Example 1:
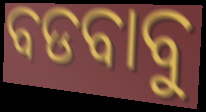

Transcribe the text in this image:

ବଡବାବୁ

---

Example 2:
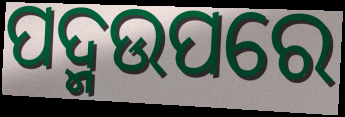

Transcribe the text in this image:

ପଦ୍ମଉପରେ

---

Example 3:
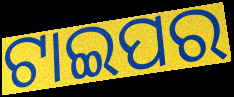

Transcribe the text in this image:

ଟାଇପର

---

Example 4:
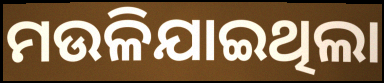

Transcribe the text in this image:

ମଉଳିଯାଇଥିଲା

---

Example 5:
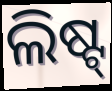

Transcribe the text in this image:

ଲିଷ୍ଟ୍